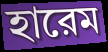
হারেম